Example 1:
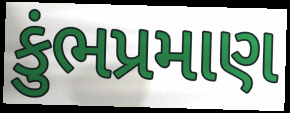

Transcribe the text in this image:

કુંભપ્રમાણ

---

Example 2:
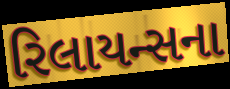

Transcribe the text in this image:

રિલાયન્સના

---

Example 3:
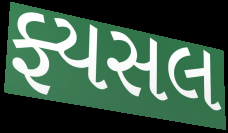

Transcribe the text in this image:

ફ્યસલ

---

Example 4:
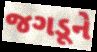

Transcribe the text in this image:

જગડૂને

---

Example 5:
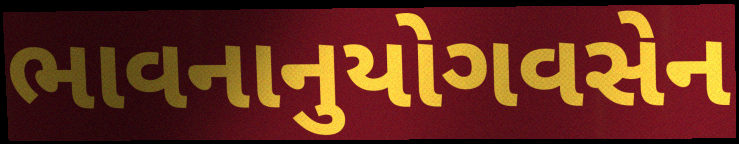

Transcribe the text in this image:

ભાવનાનુયોગવસેન